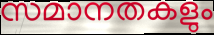
സമാനതകളും